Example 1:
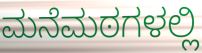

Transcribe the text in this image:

ಮನೆಮಠಗಳಲ್ಲಿ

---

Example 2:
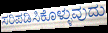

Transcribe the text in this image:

ಸರಿಪಡಿಸಿಕೊಳ್ಳುವುದು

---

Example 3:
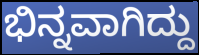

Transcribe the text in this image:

ಭಿನ್ನವಾಗಿದ್ದು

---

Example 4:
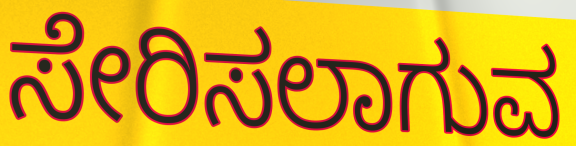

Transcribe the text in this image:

ಸೇರಿಸಲಾಗುವ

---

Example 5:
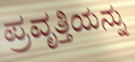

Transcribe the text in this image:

ಪ್ರವೃತ್ತಿಯನ್ನು